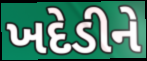
ખદેડીને